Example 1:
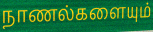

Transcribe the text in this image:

நாணல்களையும்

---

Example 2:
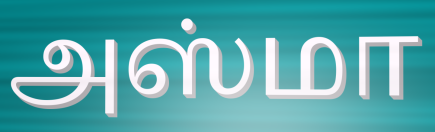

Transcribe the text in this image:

அஸ்மா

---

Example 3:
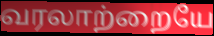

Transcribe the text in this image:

வரலாற்றையே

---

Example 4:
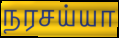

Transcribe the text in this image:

நரசய்யா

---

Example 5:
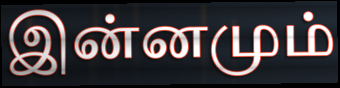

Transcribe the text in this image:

இன்னமும்